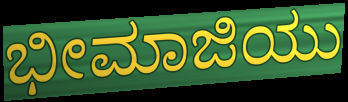
ಭೀಮಾಜಿಯು